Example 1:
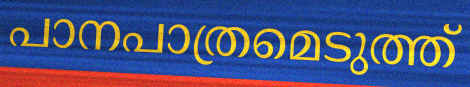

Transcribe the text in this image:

പാനപാത്രമെടുത്ത്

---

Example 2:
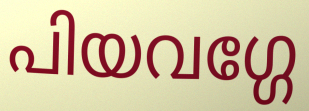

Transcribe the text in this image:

പിയവഗ്ഗേ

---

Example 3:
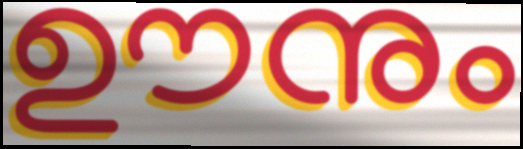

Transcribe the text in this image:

ഊനും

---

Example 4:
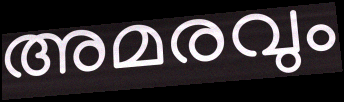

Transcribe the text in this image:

അമരവും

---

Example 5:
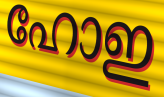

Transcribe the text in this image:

ഹോഇ